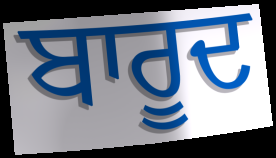
ਬਾਰੂਦ